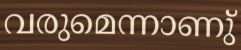
വരുമെന്നാണു്